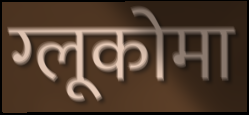
ग्लूकोमा